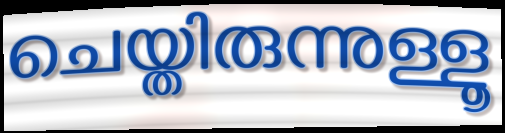
ചെയ്തിരുന്നുള്ളൂ